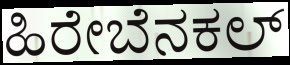
ಹಿರೇಬೆನಕಲ್